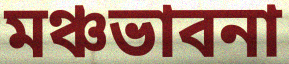
মঞ্চভাবনা